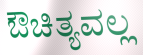
ಔಚಿತ್ಯವಲ್ಲ